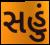
સહું